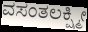
ವಸಂತಲಕ್ಷ್ಮೀ